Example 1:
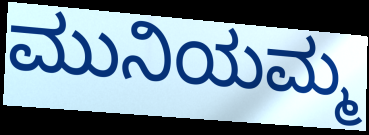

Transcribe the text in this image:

ಮುನಿಯಮ್ಮ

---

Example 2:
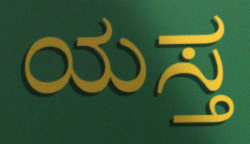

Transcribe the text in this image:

ಯಸ್ತ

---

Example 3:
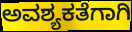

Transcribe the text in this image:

ಅವಶ್ಯಕತೆಗಾಗಿ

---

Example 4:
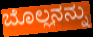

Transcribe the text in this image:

ಬೊಲ್ಲನನ್ನು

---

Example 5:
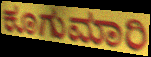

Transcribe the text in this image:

ಕೂಗುಮಾರಿ